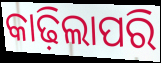
କାଢ଼ିଲାପରି